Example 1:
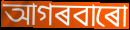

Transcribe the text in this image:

আগৰবাৰো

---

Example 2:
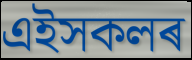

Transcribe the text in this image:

এইসকলৰ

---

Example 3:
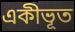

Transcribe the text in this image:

একীভূত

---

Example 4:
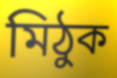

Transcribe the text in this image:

মিঠুক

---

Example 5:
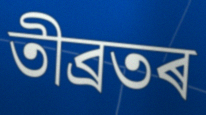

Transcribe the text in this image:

তীব্ৰতৰ